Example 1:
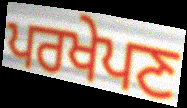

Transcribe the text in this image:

ਪਰਖੇਪਣ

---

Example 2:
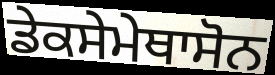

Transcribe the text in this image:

ਡੇਕਸੇਮੇਥਾਸੋਨ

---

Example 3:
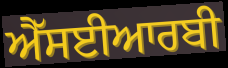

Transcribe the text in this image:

ਐੱਸਈਆਰਬੀ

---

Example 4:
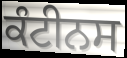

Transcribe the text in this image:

ਕੰਟੀਨਸ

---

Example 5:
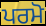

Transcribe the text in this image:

ਪਰਮੋ